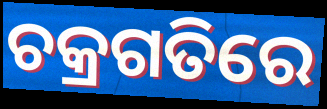
ଚକ୍ରଗତିରେ